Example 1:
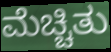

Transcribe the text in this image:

ಮೆಚ್ಚಿತು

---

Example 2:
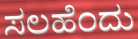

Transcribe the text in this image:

ಸಲಹೆಂದು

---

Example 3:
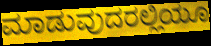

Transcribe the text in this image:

ಮಾಡುವುದರಲ್ಲಿಯೂ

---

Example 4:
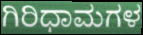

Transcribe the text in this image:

ಗಿರಿಧಾಮಗಳ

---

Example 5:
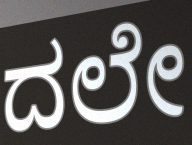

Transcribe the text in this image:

ದಲೇ